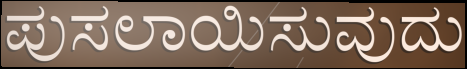
ಪುಸಲಾಯಿಸುವುದು